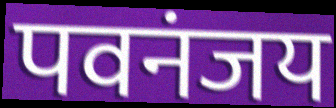
पवनंजय